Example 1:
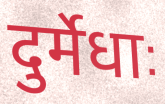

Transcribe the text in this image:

दुर्मेधाः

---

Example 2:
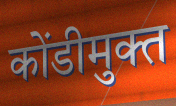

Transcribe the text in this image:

कोंडीमुक्त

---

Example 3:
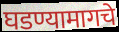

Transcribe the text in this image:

घडण्यामागचे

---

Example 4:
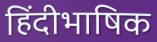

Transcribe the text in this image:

हिंदीभाषिक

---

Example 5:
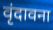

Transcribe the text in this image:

वृंदावना